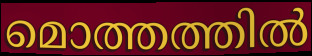
മൊത്തത്തിൽ